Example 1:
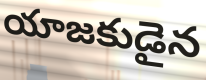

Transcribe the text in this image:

యాజకుడైన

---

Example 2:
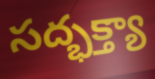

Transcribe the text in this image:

సద్భక్త్యా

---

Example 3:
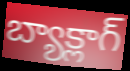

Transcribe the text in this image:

బ్యాక్లాగ్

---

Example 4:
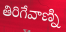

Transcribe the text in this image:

తిరిగేవాణ్ని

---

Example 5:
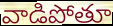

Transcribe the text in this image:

వాడిపోతూ